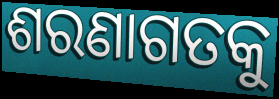
ଶରଣାଗତକୁ